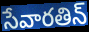
సేవారతిన్